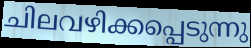
ചിലവഴിക്കപ്പെടുന്നു